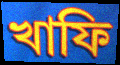
খাফি